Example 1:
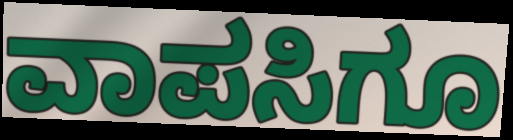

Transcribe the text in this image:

ವಾಪಸಿಗೂ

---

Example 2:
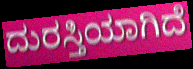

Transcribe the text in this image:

ದುರಸ್ತಿಯಾಗಿದೆ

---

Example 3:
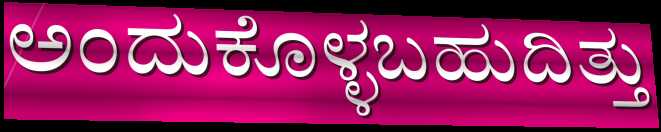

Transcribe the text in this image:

ಅಂದುಕೊಳ್ಳಬಹುದಿತ್ತು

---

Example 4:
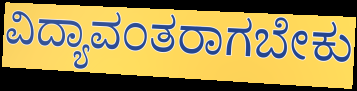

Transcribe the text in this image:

ವಿದ್ಯಾವಂತರಾಗಬೇಕು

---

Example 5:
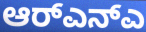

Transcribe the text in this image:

ಆರ್‌ಎನ್ಎ